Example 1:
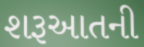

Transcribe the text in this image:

શરૂઆતની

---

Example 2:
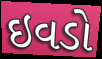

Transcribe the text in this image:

ઇવડો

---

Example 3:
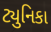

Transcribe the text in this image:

ટ્યુનિકા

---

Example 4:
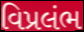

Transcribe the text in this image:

વિપ્રલંભ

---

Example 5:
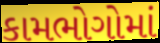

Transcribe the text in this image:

કામભોગોમાં